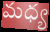
మధ్య